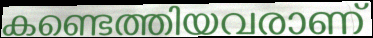
കണ്ടെത്തിയവരാണ്